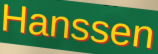
Hanssen